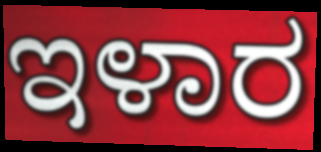
ಇಳಾರ